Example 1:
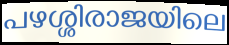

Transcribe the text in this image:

പഴശ്ശിരാജയിലെ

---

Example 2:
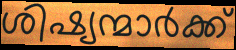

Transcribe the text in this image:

ശിഷ്യന്മാർക്ക്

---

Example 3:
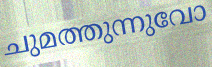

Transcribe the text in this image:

ചുമത്തുന്നുവോ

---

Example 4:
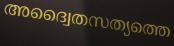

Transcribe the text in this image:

അദ്വൈതസത്യത്തെ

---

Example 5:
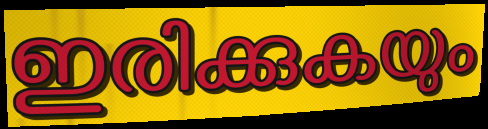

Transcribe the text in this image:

ഇരിക്കുകയും